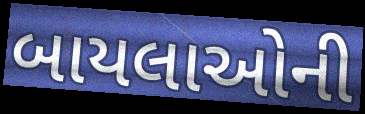
બાયલાઓની